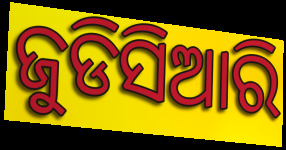
ଜୁଡିସିଆରି